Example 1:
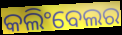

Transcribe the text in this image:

କଲିଂବେଲର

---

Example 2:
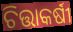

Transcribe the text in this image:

ଚିତ୍ତାକର୍ଷୀ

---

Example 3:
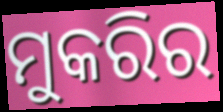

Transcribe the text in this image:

ମୁକରିର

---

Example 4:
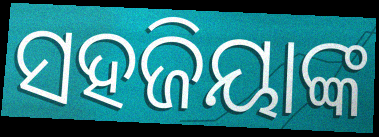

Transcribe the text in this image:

ସହଜିୟାଙ୍କ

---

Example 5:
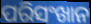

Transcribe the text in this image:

ପରିସଂଖାନ